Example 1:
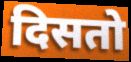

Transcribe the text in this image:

दिसतो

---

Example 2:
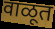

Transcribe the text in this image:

वाळूत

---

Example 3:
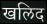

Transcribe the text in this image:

खलिद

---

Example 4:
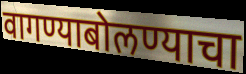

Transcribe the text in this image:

वागण्याबोलण्याचा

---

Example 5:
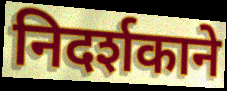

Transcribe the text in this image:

निदर्शकाने